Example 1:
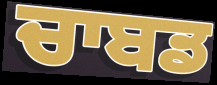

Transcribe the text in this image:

ਚਾਬਡ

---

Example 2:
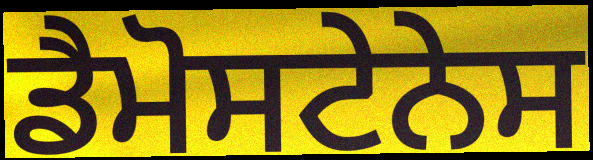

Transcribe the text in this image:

ਡੈਮੋਸਟੇਨੇਸ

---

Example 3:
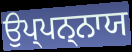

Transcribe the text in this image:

ਉਪ੍ਪਨ੍ਨਾਯ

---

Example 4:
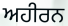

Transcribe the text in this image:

ਅਹੀਰਨ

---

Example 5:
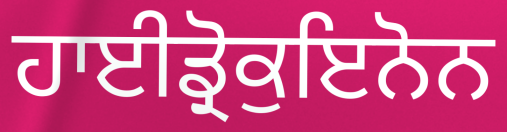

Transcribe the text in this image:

ਹਾਈਡ੍ਰੋਕੁਇਨੋਨ